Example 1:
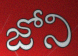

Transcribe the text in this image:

జోని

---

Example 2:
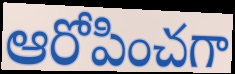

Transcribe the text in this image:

ఆరోపించగా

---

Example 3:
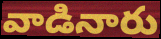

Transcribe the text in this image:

వాడినారు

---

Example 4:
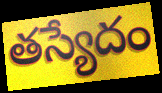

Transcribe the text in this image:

తస్యేదం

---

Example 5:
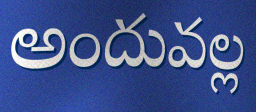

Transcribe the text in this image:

అందువల్ల